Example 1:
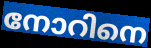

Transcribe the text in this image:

നോറിനെ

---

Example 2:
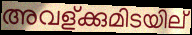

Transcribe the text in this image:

അവള്ക്കുമിടയില്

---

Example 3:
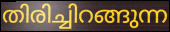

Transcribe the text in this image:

തിരിച്ചിറങ്ങുന്ന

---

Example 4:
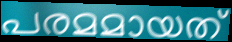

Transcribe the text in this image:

പരമമായത്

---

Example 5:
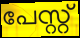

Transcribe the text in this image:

പേസ്റ്റ്